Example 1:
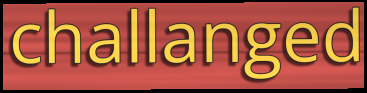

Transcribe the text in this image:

challanged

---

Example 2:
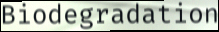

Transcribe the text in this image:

Biodegradation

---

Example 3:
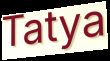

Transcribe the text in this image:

Tatya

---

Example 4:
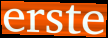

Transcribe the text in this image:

erste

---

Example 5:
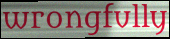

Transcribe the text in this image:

wrongfully